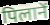
पिलानें